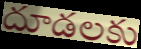
దూడలకు